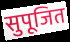
सुपूजित